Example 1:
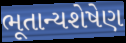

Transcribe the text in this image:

ભૂતાન્યશેષેણ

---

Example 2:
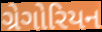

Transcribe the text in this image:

ગ્રેગોરિયન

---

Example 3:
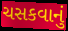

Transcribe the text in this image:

ચસકવાનું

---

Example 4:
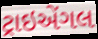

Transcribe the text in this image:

ટ્રાઇએંગલ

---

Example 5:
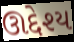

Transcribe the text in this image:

ઊદ્દેશ્ય